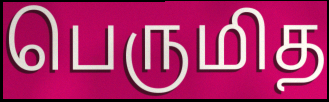
பெருமித